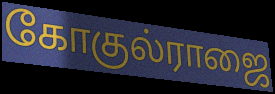
கோகுல்ராஜை